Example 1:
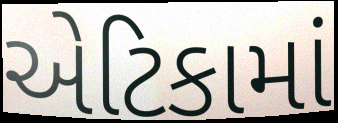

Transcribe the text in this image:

એટિકામાં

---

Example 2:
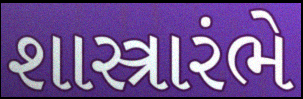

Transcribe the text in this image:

શાસ્ત્રારંભે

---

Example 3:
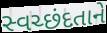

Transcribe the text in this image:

સ્વચ્છંદતાને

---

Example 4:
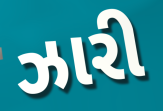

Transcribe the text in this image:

ઝારી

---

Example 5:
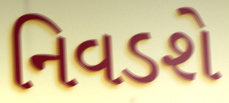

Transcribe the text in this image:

નિવડશે